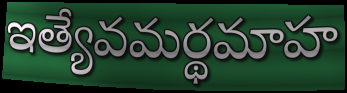
ఇత్యేవమర్థమాహ